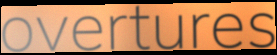
overtures